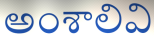
అంశాలివి